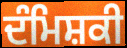
ਦੰਮਿਸ਼ਕੀ